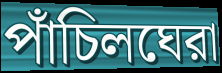
পাঁচিলঘেরা